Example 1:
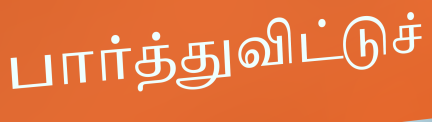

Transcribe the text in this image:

பார்த்துவிட்டுச்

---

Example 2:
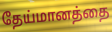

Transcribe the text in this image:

தேய்மானத்தை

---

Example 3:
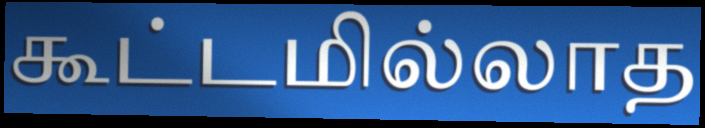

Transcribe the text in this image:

கூட்டமில்லாத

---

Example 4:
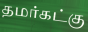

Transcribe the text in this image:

தமர்கட்கு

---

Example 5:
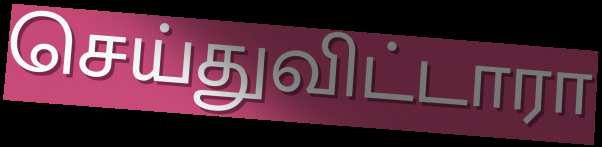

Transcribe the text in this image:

செய்துவிட்டாரா